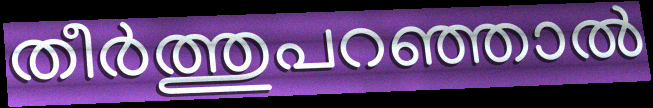
തീർത്തുപറഞ്ഞാൽ